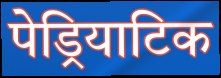
पेड्रियाटिक